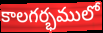
కాలగర్భములో